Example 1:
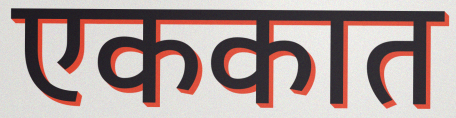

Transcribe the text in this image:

एककात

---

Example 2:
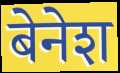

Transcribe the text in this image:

बेनेश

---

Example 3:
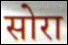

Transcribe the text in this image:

सोरा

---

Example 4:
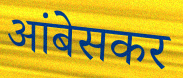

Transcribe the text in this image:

आंबेसकर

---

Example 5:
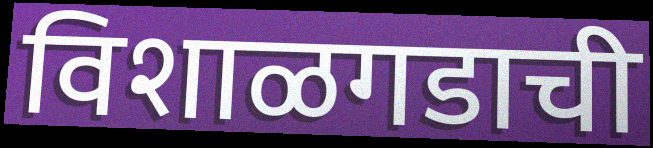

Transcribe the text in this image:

विशाळगडाची